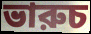
ভারুচ